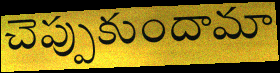
చెప్పుకుందామా